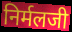
निर्मलजी